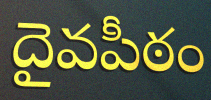
దైవపీఠం